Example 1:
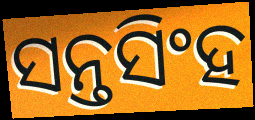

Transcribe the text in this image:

ସନ୍ତସିଂହ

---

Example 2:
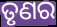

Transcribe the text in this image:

ତୃଣର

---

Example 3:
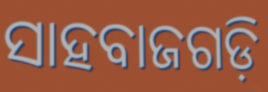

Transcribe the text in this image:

ସାହବାଜଗଡ଼ି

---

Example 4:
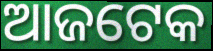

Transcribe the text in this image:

ଆଜଟେକ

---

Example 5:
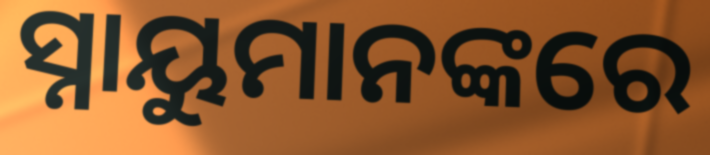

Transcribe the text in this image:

ସ୍ନାୟୁମାନଙ୍କରେ